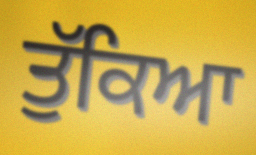
ਤੁੱਕਿਆ